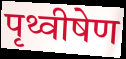
पृथ्वीषेण